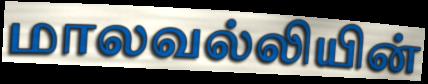
மாலவல்லியின்